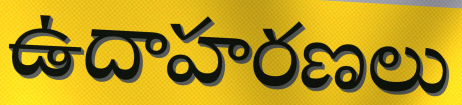
ఉదాహరణలు